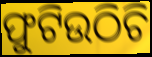
ଫୁଟିଉଠିଚି